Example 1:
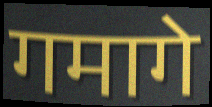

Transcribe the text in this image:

गमागे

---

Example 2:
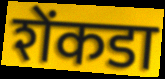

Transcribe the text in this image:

शेंकडा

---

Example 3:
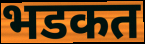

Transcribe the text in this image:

भडकत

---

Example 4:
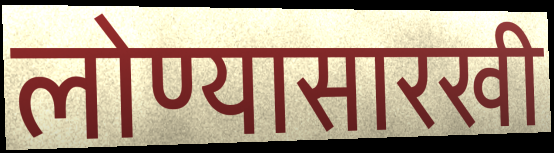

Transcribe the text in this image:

लोण्यासारखी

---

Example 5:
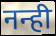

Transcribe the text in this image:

नन्ही